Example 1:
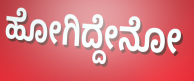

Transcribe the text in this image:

ಹೋಗಿದ್ದೇನೋ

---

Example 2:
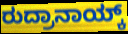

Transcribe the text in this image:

ರುದ್ರಾನಾಯ್ಕ್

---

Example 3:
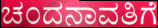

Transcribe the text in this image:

ಚಂದನಾವತಿಗೆ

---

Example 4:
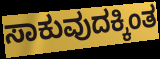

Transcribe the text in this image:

ಸಾಕುವುದಕ್ಕಿಂತ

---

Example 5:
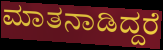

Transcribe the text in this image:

ಮಾತನಾಡಿದ್ದರೆ